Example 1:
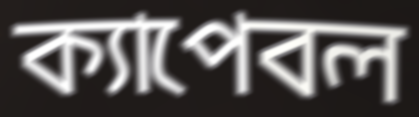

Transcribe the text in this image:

ক্যাপেবল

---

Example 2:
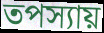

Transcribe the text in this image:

তপস্যায়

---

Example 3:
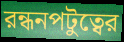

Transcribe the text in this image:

রন্ধনপটুত্বের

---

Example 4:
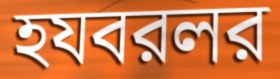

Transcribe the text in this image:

হযবরলর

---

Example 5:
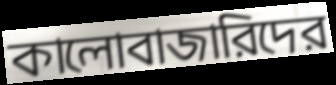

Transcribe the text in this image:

কালোবাজারিদের